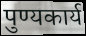
पुण्यकार्य